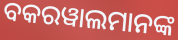
ବକରୱାଲମାନଙ୍କ